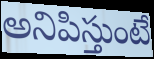
అనిపిస్తుంటే